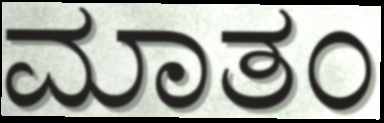
ಮಾತಂ